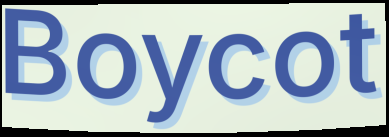
Boycot